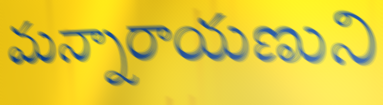
మన్నారాయణుని